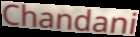
Chandani